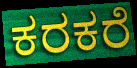
ಕರಕರೆ